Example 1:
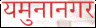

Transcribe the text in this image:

यमुनानगर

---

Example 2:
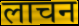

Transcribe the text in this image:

लाचन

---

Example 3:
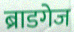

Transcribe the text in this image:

ब्राडगेज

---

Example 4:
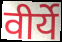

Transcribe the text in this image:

वीर्ये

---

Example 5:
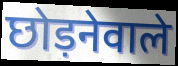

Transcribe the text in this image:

छोड़नेवाले